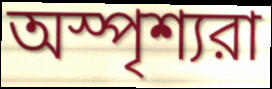
অস্পৃশ্যরা